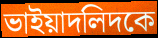
ভাইয়াদলিদকে